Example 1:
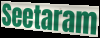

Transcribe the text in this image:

Seetaram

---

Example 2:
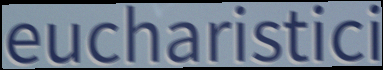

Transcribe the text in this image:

eucharistici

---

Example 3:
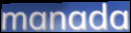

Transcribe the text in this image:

manada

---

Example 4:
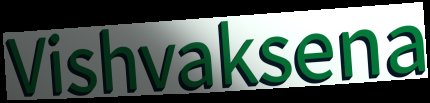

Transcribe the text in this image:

Vishvaksena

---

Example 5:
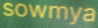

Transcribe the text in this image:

sowmya